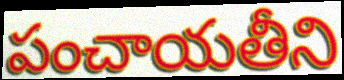
పంచాయతీని